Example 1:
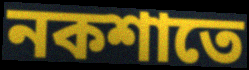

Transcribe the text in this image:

নকশাতে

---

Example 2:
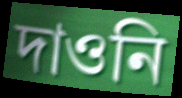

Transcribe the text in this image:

দাওনি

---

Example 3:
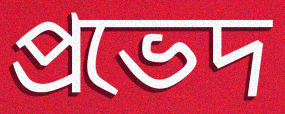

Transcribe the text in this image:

প্রভেদ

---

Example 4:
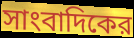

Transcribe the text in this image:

সাংবাদিকের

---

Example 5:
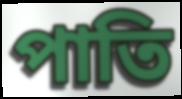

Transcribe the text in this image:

পাতি